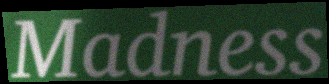
Madness